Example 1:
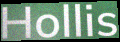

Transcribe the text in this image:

Hollis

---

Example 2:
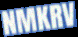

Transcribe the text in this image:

NMKRV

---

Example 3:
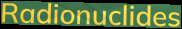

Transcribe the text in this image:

Radionuclides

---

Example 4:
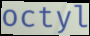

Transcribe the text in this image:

octyl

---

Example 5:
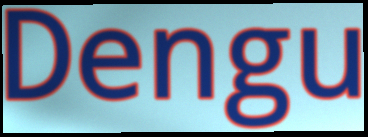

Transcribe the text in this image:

Dengu